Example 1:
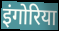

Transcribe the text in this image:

इंगोरिया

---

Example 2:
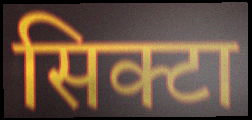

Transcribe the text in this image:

सिक्टा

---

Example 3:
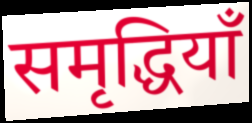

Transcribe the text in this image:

समृद्धियाँ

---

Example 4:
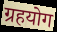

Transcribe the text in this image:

ग्रहयोग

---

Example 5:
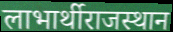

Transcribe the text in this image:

लाभार्थीराजस्थान